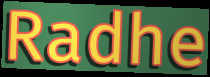
Radhe